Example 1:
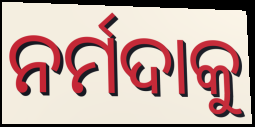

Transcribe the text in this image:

ନର୍ମଦାକୁ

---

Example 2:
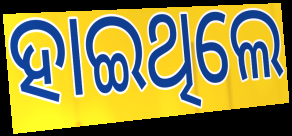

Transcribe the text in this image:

ହାଇଥିଲେ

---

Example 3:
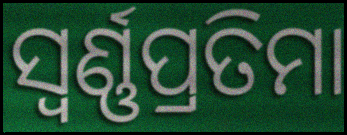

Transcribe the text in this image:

ସ୍ୱର୍ଣ୍ଣପ୍ରତିମା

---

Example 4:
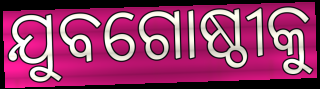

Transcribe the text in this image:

ଯୁବଗୋଷ୍ଠୀକୁ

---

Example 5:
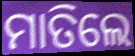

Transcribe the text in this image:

ମାତିଲେ